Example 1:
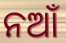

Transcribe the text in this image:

ନଆଁ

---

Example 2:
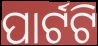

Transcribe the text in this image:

ପାର୍ଟଟି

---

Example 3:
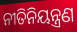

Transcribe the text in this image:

ନୀତିନିୟନ୍ତ୍ରଣ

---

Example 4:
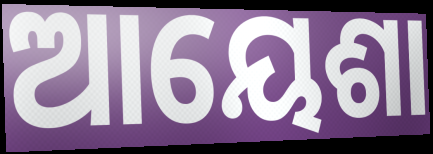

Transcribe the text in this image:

ଆୟେଶା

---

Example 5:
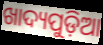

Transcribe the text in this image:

ଖାଦ୍ୟପୁଡ଼ିଆ